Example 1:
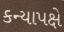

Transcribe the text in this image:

કન્યાપક્ષે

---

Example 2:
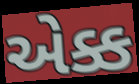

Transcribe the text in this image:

એક્ક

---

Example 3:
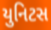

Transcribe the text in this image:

યુનિટસ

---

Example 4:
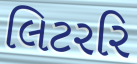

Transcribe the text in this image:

લિટરરિ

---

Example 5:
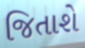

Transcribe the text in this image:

જિતાશે